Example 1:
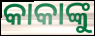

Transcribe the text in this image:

କାକାଙ୍କୁ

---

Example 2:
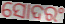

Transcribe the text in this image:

ସୋଦରଂ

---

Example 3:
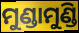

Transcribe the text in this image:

ମୁଣ୍ଡାମୁଣ୍ଡି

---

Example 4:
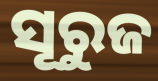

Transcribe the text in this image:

ସୂରୁଜ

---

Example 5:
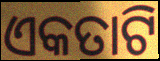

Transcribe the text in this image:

ଏକତାଟି